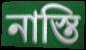
নাস্তি